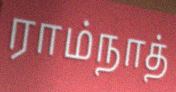
ராம்நாத்